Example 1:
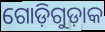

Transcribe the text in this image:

ଗୋଡ଼ିଗୁଡ଼ାକ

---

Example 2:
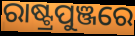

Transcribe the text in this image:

ରାଷ୍ଟ୍ରପୁଞ୍ଜରେ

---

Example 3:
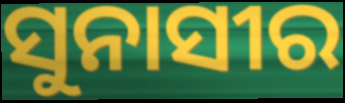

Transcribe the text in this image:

ସୁନାସୀର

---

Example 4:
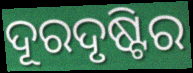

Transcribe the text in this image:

ଦୂରଦୃଷ୍ଟିର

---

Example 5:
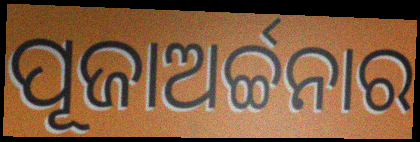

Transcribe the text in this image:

ପୂଜାଅର୍ଚ୍ଚନାର